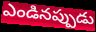
ఎండినప్పుడు